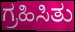
ಗ್ರಹಿಸಿತು